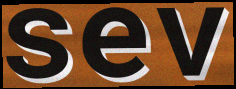
sev